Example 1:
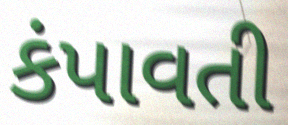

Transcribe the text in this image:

કંપાવતી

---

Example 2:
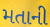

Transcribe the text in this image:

મતાની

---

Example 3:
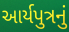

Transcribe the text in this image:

આર્યપુત્રનું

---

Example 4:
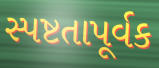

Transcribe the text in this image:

સ્પષ્ટતાપૂર્વક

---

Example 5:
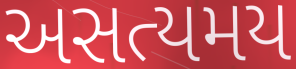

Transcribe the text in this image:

અસત્યમય